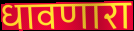
धावणारा